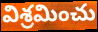
విశ్రమించు